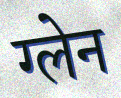
ग्लेन